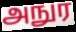
அநுர